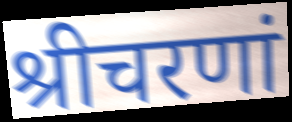
श्रीचरणां